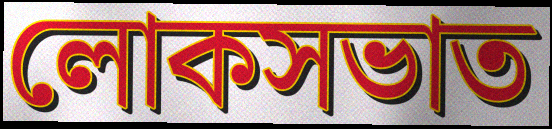
লোকসভাত